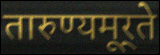
तारुण्यमूर्ते